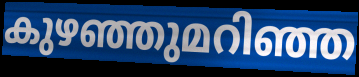
കുഴഞ്ഞുമറിഞ്ഞ